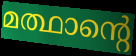
മത്ഥാന്റെ